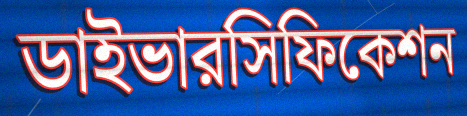
ডাইভারসিফিকেশন